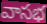
వాసభ